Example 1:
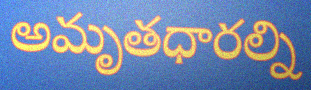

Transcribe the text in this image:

అమృతధారల్ని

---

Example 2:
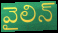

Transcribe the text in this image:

వైలిన్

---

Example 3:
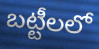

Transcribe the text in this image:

బట్టీలలో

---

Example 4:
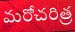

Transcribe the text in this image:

మరోచరిత్ర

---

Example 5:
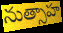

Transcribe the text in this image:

నుత్సాహ